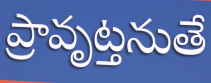
ప్రావృట్తనుతే